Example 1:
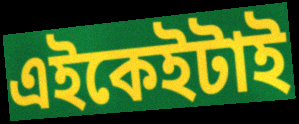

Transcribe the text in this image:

এইকেইটাই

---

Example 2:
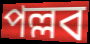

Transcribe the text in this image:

পল্লব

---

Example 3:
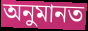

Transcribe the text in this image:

অনুমানত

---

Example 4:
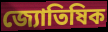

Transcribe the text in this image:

জ্যোতিষিক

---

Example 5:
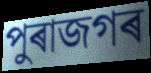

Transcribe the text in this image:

পুৰাজগৰ